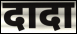
दादा